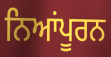
ਨਿਆਂਪੂਰਨ